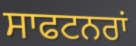
ਸਾਫਟਨਰਾਂ